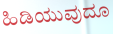
ಹಿಡಿಯುವುದೂ